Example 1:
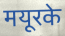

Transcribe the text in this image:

मयूरके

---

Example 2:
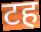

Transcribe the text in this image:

टह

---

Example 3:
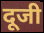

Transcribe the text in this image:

दूजी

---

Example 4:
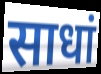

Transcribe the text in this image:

साधां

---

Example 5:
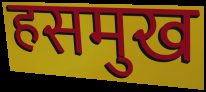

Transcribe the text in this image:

हसमुख